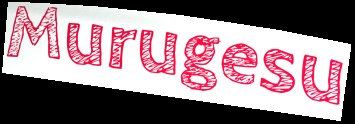
Murugesu